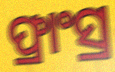
ଫ୍ରାଂସ୍ର